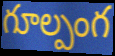
గూల్పంగ